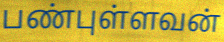
பண்புள்ளவன்